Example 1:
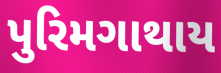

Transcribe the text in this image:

પુરિમગાથાય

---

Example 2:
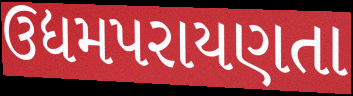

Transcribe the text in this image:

ઉદ્યમપરાયણતા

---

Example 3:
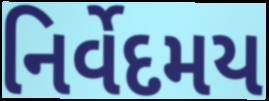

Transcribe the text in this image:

નિર્વેદમય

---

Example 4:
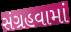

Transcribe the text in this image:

સંગ્રહવામાં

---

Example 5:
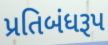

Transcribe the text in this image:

પ્રતિબંધરૂપ